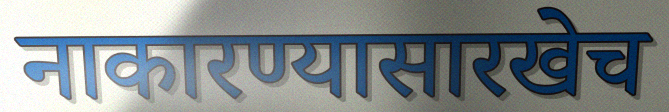
नाकारण्यासारखेच